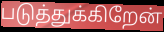
படுத்துக்கிறேன்